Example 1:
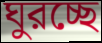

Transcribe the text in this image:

ঘুরচ্ছে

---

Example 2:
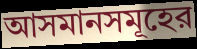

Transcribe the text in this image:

আসমানসমূহের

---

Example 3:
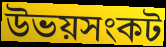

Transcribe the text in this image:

উভয়সংকট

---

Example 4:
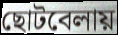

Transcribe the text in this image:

ছোটবেলায়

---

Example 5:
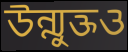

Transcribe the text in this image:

উন্মুক্তও